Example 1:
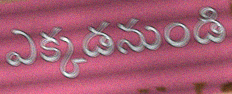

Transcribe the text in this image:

ఎక్కడనుండి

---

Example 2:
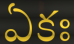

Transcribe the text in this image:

ఏకః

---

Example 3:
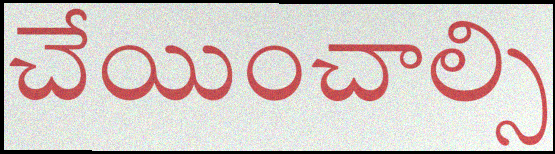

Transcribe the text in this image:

చేయించాల్సి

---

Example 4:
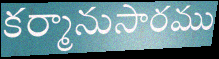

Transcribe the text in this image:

కర్మానుసారము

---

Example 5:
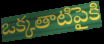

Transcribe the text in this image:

ఒక్కతాటిపైకి